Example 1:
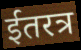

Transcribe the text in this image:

ईतरत्र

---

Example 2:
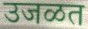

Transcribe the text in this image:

उजळत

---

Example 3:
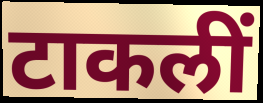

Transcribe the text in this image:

टाकलीं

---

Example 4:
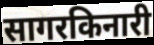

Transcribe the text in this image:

सागरकिनारी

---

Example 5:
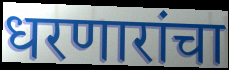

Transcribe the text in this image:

धरणारांचा